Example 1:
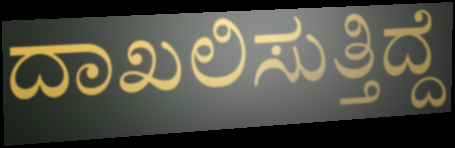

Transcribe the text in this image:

ದಾಖಲಿಸುತ್ತಿದ್ದೆ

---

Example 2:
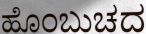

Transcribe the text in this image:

ಹೊಂಬುಚದ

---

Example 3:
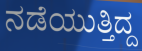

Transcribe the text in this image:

ನಡೆಯುತ್ತಿದ್ದ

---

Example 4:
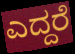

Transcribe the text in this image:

ಎದ್ದರೆ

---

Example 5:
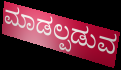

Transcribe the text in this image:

ಮಾಡಲ್ಪಡುವ